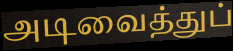
அடிவைத்துப்